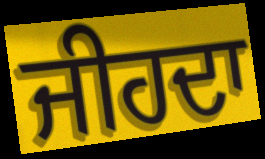
ਜੀਹਦਾ